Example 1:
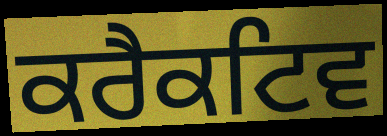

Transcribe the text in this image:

ਕਰੈਕਟਿਵ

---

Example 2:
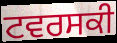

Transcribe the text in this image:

ਟਵਰਸਕੀ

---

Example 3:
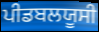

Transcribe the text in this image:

ਪੀਡਬਲਯੂਸੀ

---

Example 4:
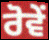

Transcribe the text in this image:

ਰੋਵੇਂ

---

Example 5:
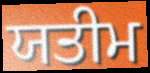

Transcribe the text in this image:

ਯਤੀਮ